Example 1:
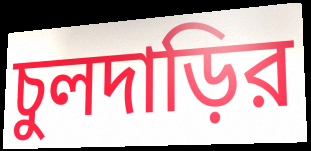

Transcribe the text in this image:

চুলদাড়ির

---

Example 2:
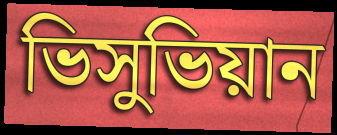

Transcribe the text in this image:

ভিসুভিয়ান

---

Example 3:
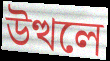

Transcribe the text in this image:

উত্থলে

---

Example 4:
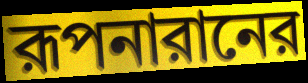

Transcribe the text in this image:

রূপনারানের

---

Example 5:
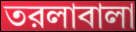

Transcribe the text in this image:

তরলাবালা